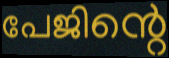
പേജിന്റെ